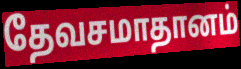
தேவசமாதானம்